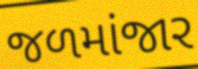
જળમાંજાર